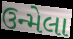
ઉન્મેલા